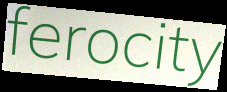
ferocity